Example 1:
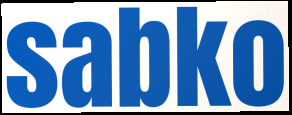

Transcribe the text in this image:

sabko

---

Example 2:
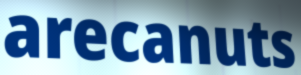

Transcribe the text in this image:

arecanuts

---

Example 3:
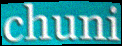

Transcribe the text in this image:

chuni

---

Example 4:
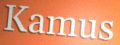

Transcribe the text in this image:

Kamus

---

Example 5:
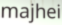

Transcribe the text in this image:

majhei